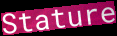
Stature